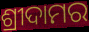
ଶ୍ରୀଦାମର